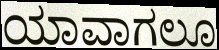
ಯಾವಾಗಲೂ